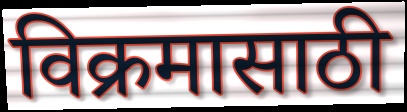
विक्रमासाठी